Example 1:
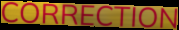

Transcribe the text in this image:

CORRECTION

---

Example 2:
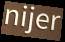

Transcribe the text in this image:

nijer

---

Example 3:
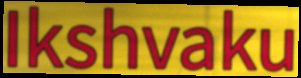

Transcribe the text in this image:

Ikshvaku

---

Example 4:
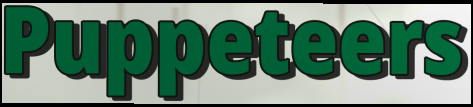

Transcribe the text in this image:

Puppeteers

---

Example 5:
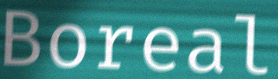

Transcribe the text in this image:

Boreal